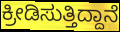
ಕ್ರೀಡಿಸುತ್ತಿದ್ದಾನೆ